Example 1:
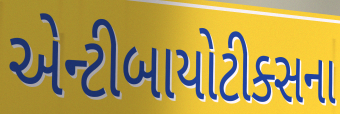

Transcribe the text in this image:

એન્ટીબાયોટીક્સના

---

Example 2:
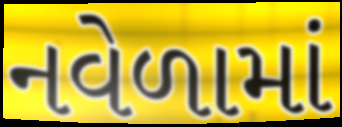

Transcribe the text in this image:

નવેળામાં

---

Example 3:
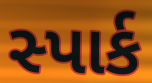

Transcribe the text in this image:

સ્પાર્ક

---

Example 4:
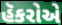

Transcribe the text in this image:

હૅકરોએ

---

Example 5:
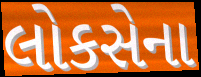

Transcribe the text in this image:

લોકસેના